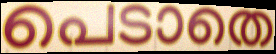
പെടാതെ